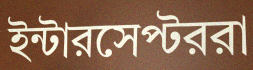
ইন্টারসেপ্টররা